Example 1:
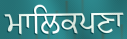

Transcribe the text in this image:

ਮਾਲਿਕਪਣਾ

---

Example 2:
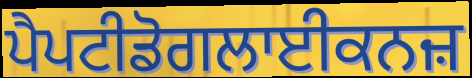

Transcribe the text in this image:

ਪੈਪਟੀਡੋਗਲਾਈਕਨਜ਼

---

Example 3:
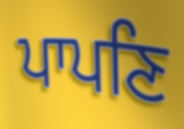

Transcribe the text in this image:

ਪਾਪਣਿ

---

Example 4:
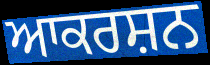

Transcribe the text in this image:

ਆਕਰਸ਼ਨ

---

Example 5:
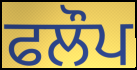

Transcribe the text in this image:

ਫਲੌਪ